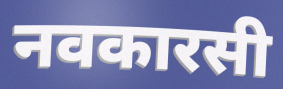
नवकारसी